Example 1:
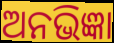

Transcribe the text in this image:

ଅନଭିଜ୍ଞା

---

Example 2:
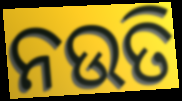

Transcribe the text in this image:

ନଉତି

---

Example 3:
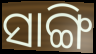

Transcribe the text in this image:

ସାଙ୍ଗି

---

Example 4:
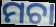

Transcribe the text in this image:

ମଚା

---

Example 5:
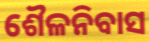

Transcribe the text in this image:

ଶୈଳନିବାସ